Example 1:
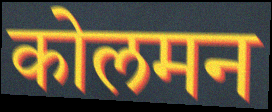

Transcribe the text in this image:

कोलमन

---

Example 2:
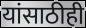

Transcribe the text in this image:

यांसाठीही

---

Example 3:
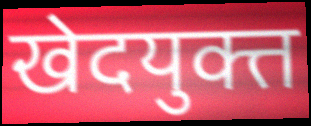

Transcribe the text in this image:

खेदयुक्त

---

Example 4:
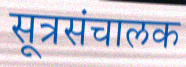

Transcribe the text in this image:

सूत्रसंचालक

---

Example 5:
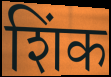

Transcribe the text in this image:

शिंक